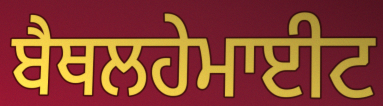
ਬੈਥਲਹੇਮਾਈਟ